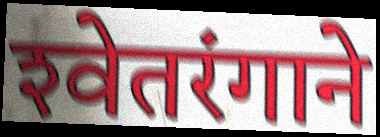
श्वेतरंगाने